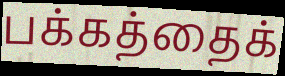
பக்கத்தைக்